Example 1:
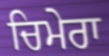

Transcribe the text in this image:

ਚਿਮੇਰਾ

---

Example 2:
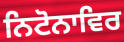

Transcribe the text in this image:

ਨਿਟੋਨਾਵਿਰ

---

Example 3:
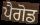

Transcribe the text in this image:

ਪੈਗੋਡ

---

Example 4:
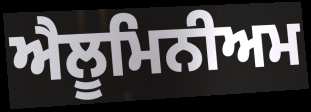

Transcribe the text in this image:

ਐਲੂਮਿਨੀਅਮ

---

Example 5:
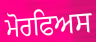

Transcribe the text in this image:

ਮੋਰਫਿਅਸ